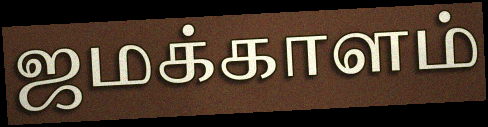
ஜமக்காளம்